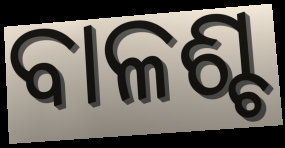
ବାଳଶ୍ଚ